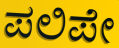
ಪಲಿಪೇ